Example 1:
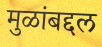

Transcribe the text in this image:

मुळांबद्दल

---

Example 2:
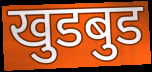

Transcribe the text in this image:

खुडबुड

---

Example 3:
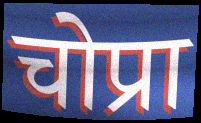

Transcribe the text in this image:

चोप्रा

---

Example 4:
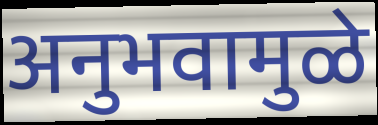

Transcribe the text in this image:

अनुभवामुळे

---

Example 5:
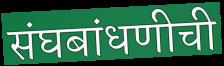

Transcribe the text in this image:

संघबांधणीची